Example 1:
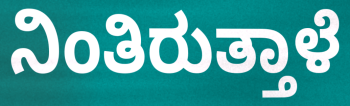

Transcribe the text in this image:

ನಿಂತಿರುತ್ತಾಳೆ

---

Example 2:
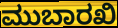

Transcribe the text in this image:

ಮುಬಾರಖಿ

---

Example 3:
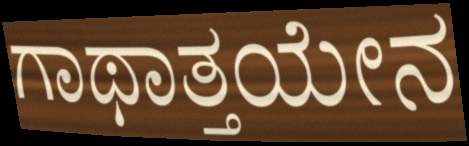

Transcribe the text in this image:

ಗಾಥಾತ್ತಯೇನ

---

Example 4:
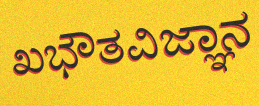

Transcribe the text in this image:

ಖಭೌತವಿಜ್ಞಾನ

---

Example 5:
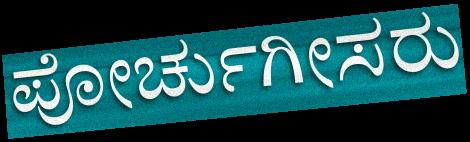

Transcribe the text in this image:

ಪೋರ್ಚುಗೀಸರು